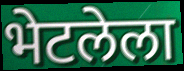
भेटलेला